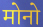
मोनो